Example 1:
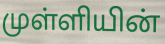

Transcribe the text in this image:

முள்ளியின்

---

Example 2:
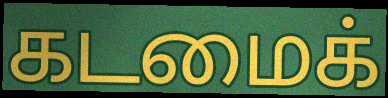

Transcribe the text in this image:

கடமைக்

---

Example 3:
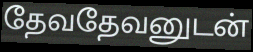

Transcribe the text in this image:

தேவதேவனுடன்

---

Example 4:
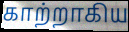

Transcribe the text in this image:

காற்றாகிய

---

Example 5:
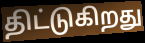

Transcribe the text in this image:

திட்டுகிறது